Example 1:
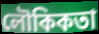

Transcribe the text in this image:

লৌকিকতা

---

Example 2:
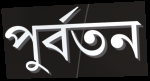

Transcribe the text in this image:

পুর্বতন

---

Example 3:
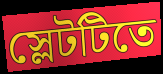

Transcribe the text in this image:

স্লেটটিতে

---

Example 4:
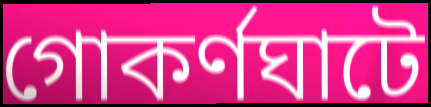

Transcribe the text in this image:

গোকর্ণঘাটে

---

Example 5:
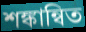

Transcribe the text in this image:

শঙ্কান্বিত